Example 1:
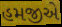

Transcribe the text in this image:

હમજીએ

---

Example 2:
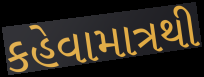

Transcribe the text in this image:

કહેવામાત્રથી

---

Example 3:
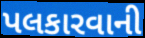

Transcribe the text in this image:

પલકારવાની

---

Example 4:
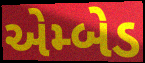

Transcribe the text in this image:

એમ્બેડ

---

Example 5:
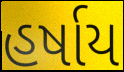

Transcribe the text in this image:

હર્ષાય